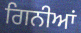
ਗਿਨੀਆਂ